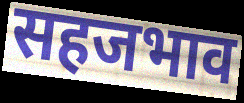
सहजभाव